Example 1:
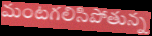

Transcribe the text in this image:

మంటగలిసిపోతున్న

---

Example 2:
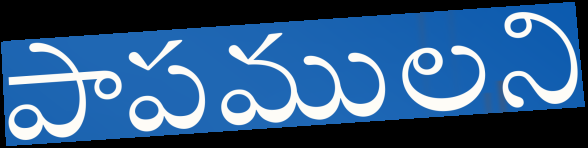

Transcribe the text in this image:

పాపములని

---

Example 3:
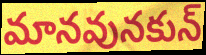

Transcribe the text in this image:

మానవునకున్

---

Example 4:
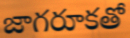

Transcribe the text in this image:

జాగరూకతో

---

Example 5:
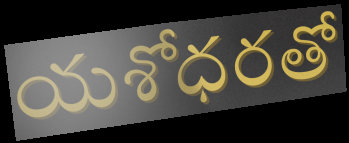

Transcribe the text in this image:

యశోధరతో